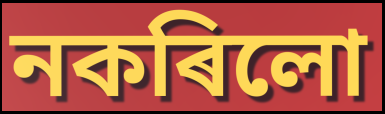
নকৰিলো